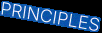
PRINCIPLES